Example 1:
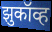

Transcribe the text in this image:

झुकॉव्ह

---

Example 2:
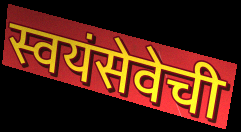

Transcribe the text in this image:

स्वयंसेवेची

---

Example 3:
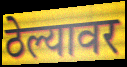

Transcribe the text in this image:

ठेल्यावर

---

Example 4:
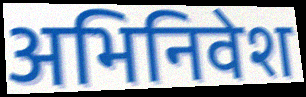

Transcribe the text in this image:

अभिनिवेश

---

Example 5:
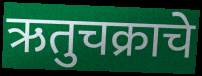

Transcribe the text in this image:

ऋतुचक्राचे